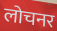
लोचनर